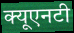
क्यूएनटी